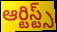
ఆర్టిస్ట్స్